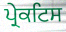
ਪ੍ਰੇਕਟਿਸ